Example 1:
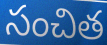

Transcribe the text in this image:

సంచిత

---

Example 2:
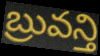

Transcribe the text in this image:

బ్రువన్తి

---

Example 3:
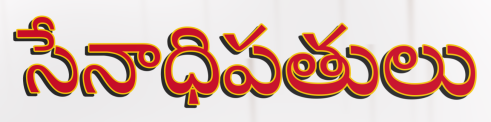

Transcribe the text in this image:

సేనాధిపతులు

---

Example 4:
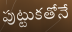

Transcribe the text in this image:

పుట్టుకతోనే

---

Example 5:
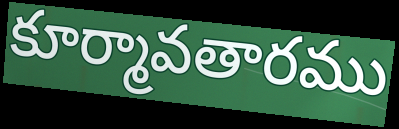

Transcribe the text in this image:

కూర్మావతారము